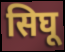
सिघू